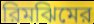
রিমঝিমের